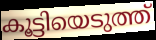
കൂട്ടിയെടുത്ത്